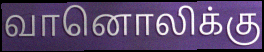
வானொலிக்கு